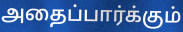
அதைப்பார்க்கும்